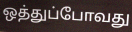
ஒத்துப்போவது